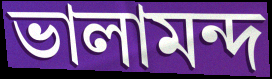
ভালামন্দ